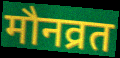
मौनव्रत